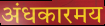
अंधकारमय